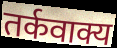
तर्कवाक्य